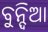
ବୁନ୍ଦିଆ